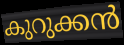
കുറുക്കൻ